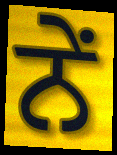
ਨੇਂ